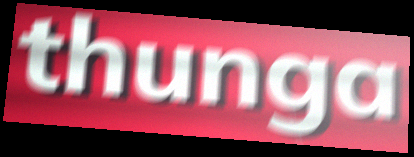
thunga